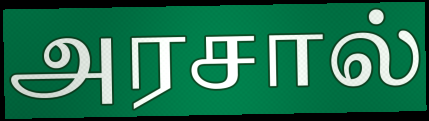
அரசால்